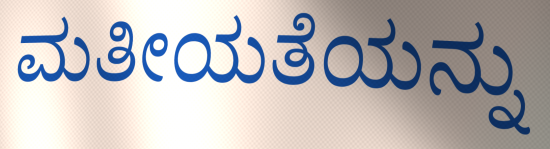
ಮತೀಯತೆಯನ್ನು